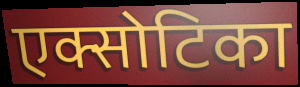
एक्सोटिका